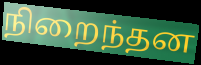
நிறைந்தன